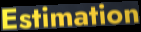
Estimation